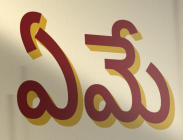
ఏమే